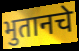
भुतानचे